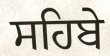
ਸਹਿਬੇ